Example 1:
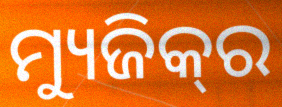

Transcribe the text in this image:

ମ୍ୟୁଜିକ୍‌ର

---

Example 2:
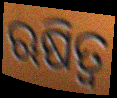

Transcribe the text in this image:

ଋଷିତ୍ୱ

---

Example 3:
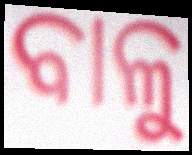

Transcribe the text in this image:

ବାଳୁ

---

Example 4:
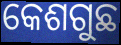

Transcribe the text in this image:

କେଶଗୁଛ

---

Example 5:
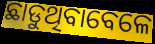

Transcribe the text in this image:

ଛାଡୁଥିବାବେଳେ